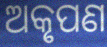
ଅକୃପଣ